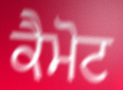
ਕੈਮੋਟ